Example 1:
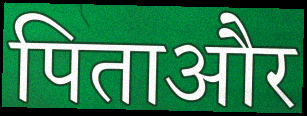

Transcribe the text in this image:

पिताऔर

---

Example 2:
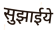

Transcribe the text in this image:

सुझाईये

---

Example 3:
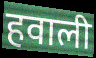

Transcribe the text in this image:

हवाली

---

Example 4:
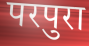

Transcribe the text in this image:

परपुरा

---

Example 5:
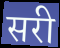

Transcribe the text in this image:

सरी